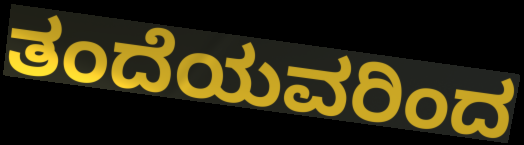
ತಂದೆಯವರಿಂದ